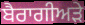
ਬੈਰਾਗੀਅੜੇ